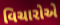
વિચારોએ